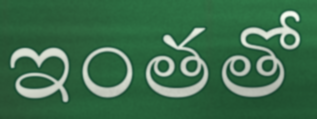
ఇంతతో